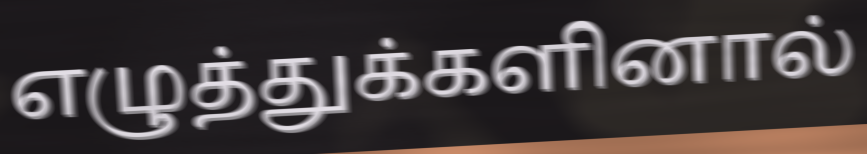
எழுத்துக்களினால்